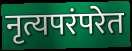
नृत्यपरंपरेत